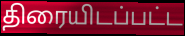
திரையிடப்பட்ட